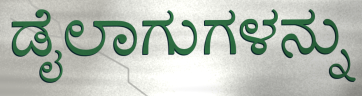
ಡೈಲಾಗುಗಳನ್ನು